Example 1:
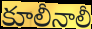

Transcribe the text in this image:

కూలీనాలీ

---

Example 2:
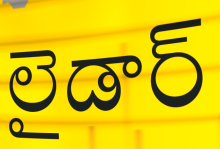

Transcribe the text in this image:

లైడార్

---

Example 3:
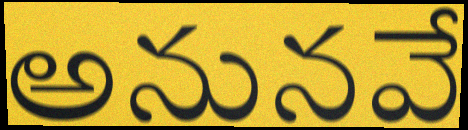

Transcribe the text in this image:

అనునవే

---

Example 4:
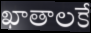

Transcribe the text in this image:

ఖాతాలకే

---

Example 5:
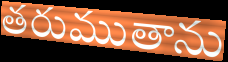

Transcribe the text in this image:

తరుముతాను